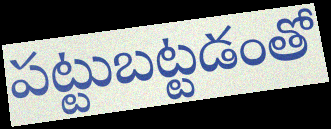
పట్టుబట్టడంతో